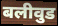
बलीवुड